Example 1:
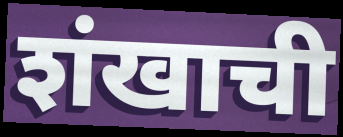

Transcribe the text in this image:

शंखाची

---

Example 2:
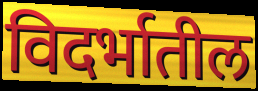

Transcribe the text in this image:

विदर्भातील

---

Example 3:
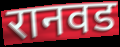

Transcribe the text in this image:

रानवड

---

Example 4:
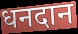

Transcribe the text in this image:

धनदान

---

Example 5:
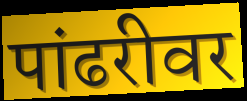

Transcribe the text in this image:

पांढरीवर